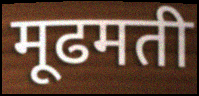
मूढमती